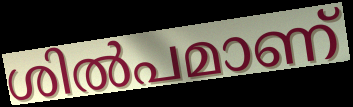
ശിൽപമാണ്